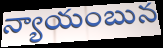
న్యాయంబున